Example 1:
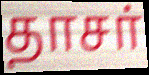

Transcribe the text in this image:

தாசர்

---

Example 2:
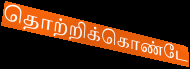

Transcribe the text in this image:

தொற்றிக்கொண்டே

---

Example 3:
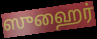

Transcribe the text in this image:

ஸுஹைர்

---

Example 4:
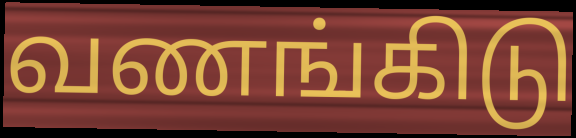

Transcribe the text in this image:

வணங்கிடு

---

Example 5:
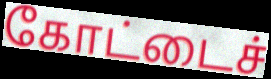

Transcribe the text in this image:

கோட்டைச்